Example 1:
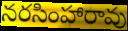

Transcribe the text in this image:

నరసింహారావు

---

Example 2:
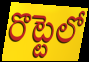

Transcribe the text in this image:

రొట్టెలో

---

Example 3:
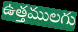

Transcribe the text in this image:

ఉత్తములగు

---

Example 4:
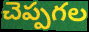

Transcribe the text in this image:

చెప్పగల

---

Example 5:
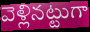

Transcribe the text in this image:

వెళ్లినట్టుగా